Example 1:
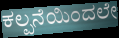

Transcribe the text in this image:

ಕಲ್ಪನೆಯಿಂದಲೇ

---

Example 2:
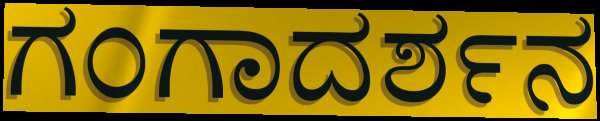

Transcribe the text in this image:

ಗಂಗಾದರ್ಶನ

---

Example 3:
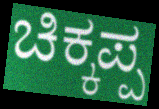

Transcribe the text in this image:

ಚಿಕ್ಕಪ್ಪ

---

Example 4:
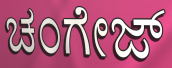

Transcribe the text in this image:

ಚಂಗೇಜ್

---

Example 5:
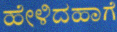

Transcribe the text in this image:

ಹೇಳಿದಹಾಗೆ